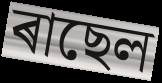
ৰাছেল